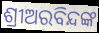
ଶ୍ରୀଅରବିନ୍ଦଙ୍କ